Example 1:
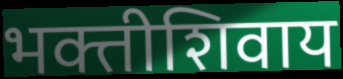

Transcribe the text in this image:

भक्तीशिवाय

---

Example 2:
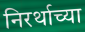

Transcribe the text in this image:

निरर्थाच्या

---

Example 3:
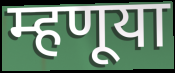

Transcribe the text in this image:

म्हणूया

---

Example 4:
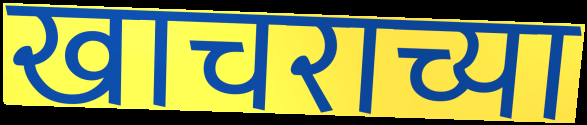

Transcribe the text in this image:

खाचराच्या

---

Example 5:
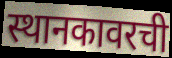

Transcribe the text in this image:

स्थानकावरची